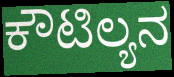
ಕೌಟಿಲ್ಯನ